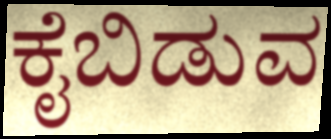
ಕೈಬಿಡುವ